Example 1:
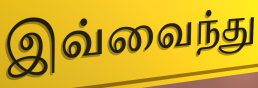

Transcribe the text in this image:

இவ்வைந்து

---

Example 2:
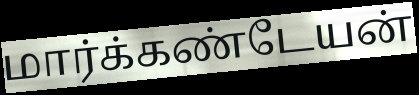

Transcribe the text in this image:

மார்க்கண்டேயன்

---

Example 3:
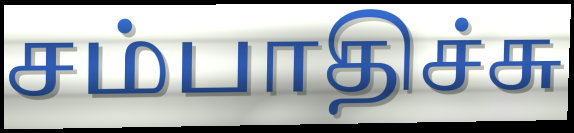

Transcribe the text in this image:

சம்பாதிச்சு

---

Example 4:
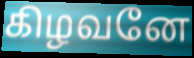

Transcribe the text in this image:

கிழவனே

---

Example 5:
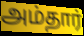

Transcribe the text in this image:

அம்தார்